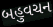
બહુવચન